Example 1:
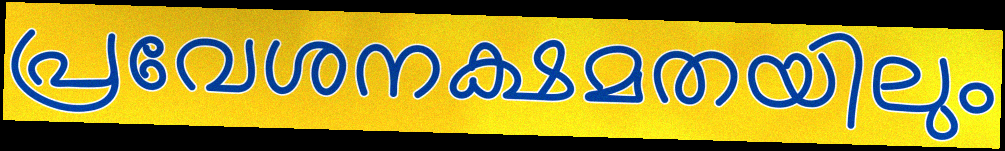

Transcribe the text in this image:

പ്രവേശനക്ഷമതയിലും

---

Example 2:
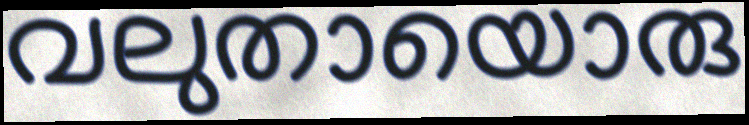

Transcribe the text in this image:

വലുതായൊരു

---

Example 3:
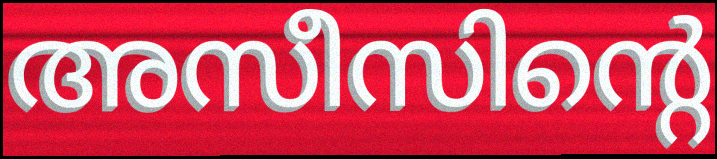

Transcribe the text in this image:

അസീസിന്റെ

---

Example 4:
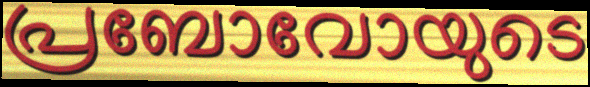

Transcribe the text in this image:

പ്രബോവോയുടെ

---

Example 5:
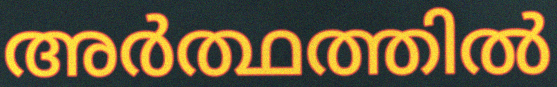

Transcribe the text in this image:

അർത്ഥത്തിൽ